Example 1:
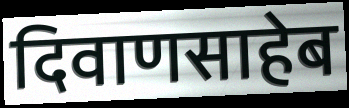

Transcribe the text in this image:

दिवाणसाहेब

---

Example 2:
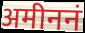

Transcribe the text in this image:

अमीननं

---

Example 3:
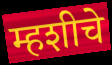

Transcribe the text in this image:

म्हशीचे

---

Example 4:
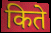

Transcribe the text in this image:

किते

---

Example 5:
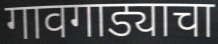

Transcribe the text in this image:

गावगाड्याचा